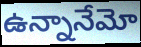
ఉన్నానేమో